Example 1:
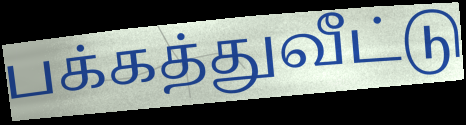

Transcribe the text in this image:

பக்கத்துவீட்டு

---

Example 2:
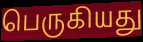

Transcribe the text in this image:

பெருகியது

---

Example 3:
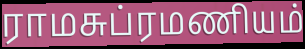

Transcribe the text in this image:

ராமசுப்ரமணியம்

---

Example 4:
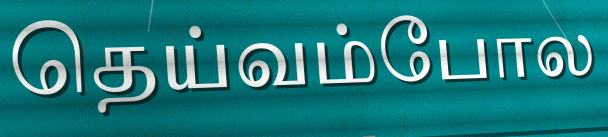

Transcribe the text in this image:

தெய்வம்போல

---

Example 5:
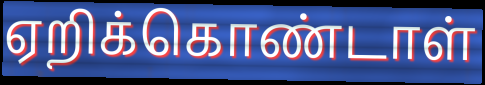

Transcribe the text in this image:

ஏறிக்கொண்டாள்